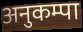
अनुकम्‍पा